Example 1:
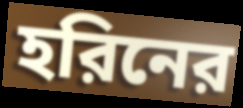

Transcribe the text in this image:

হরিনের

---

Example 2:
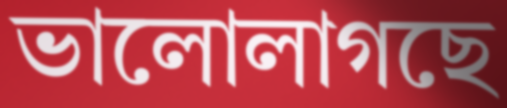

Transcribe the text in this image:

ভালোলাগছে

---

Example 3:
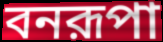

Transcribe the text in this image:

বনরূপা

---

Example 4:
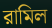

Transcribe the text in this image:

রামিল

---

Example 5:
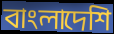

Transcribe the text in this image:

বাংলাদেশি